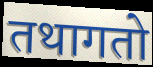
तथागतो